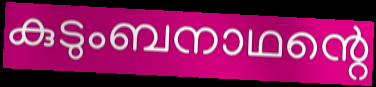
കുടുംബനാഥന്റെ